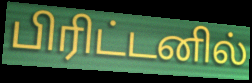
பிரிட்டனில்